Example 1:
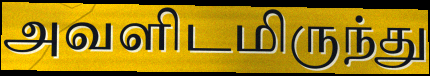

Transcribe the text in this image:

அவளிடமிருந்து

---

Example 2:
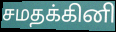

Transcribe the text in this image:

சமதக்கினி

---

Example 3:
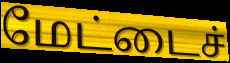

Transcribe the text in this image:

மேட்டைச்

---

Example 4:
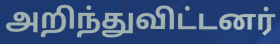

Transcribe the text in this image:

அறிந்துவிட்டனர்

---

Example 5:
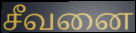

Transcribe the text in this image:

சீவனை